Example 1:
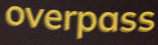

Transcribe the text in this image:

overpass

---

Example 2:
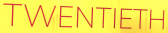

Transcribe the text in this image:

TWENTIETH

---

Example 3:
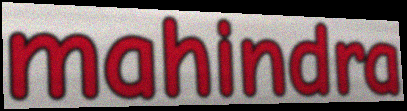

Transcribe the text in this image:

mahindra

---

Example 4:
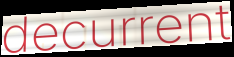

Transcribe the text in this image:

decurrent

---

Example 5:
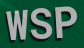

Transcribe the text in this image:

WSP